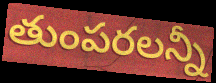
తుంపరలన్నీ